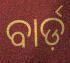
ବାର୍ଡ଼